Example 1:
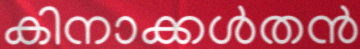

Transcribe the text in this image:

കിനാക്കൾതൻ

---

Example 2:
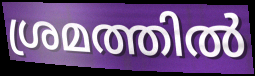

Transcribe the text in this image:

ശ്രമത്തിൽ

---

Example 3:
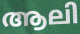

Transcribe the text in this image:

ആലി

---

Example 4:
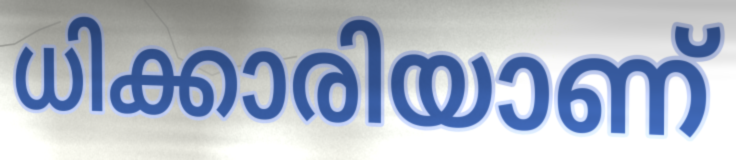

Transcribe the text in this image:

ധിക്കാരിയാണ്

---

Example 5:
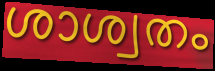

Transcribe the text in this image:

ശാശ്വതം